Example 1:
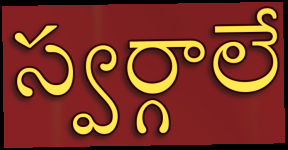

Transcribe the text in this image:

స్వర్గాలే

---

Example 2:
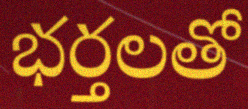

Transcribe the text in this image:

భర్తలతో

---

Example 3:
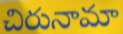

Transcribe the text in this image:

చిరునామా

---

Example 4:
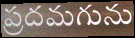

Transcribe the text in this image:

ప్రదమగును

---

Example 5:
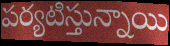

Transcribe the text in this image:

పర్యటిస్తున్నాయి